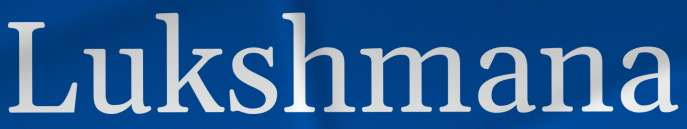
Lukshmana